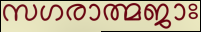
സഗരാത്മജാഃ